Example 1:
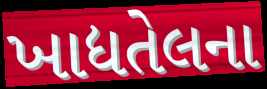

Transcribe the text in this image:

ખાદ્યતેલના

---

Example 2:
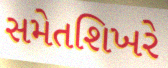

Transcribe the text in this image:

સમેતશિખરે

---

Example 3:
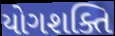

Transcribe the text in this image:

યોગશક્તિ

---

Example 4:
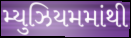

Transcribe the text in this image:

મ્યુઝિયમમાંથી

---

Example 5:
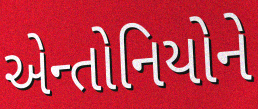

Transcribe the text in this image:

એન્તોનિયોને